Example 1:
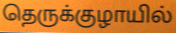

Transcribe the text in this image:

தெருக்குழாயில்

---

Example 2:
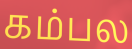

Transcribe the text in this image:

கம்பல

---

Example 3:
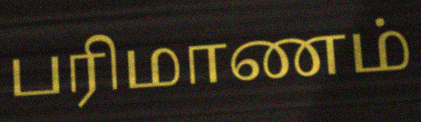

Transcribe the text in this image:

பரிமாணம்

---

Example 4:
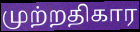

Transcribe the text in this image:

முற்றதிகார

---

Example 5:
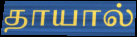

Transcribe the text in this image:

தாயால்